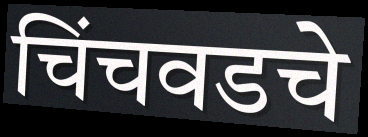
चिंचवडचे